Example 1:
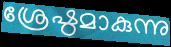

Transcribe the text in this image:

ശ്രേഷ്ഠമാകുന്നു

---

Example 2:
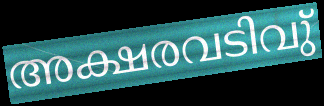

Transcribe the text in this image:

അക്ഷരവടിവു്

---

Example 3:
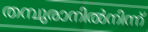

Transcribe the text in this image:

തമ്പുരാനിൽനിന്ന്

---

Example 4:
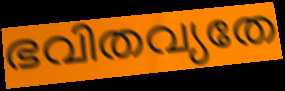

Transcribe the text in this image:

ഭവിതവ്യതേ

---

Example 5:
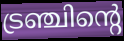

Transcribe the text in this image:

ട്രഞ്ചിന്റെ